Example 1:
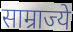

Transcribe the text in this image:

साम्राज्ये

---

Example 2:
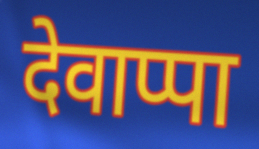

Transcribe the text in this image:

देवाप्पा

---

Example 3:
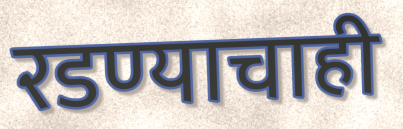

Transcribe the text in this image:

रडण्याचाही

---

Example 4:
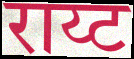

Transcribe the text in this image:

राय्ट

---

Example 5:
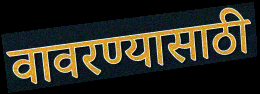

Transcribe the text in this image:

वावरण्यासाठी